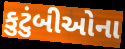
કુટુંબીઓના